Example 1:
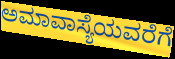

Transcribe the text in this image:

ಅಮಾವಾಸ್ಯೆಯವರೆಗೆ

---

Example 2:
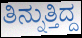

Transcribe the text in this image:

ತಿನ್ನುತ್ತಿದ್ದ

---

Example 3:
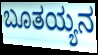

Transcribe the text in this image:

ಬೂತಯ್ಯನ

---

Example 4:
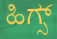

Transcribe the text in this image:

ಹಿಗ್ಸ್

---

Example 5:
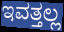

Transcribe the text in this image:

ಇವತ್ತಲ್ಲ